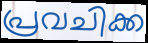
പ്രവചിക്ക